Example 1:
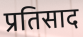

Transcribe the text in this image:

प्रतिसाद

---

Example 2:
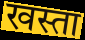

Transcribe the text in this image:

खस्ता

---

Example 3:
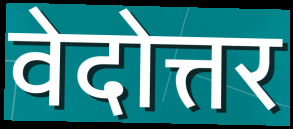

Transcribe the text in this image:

वेदोत्तर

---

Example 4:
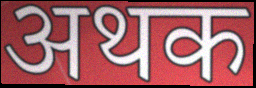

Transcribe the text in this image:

अथक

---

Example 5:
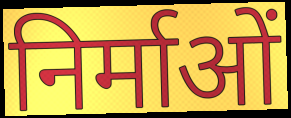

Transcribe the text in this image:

निर्माओं